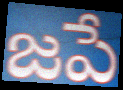
జపే